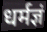
धर्मज्ञं